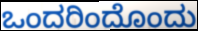
ಒಂದರಿಂದೊಂದು